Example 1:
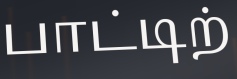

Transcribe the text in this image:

பாட்டிற்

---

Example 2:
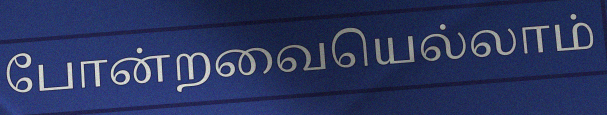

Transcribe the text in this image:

போன்றவையெல்லாம்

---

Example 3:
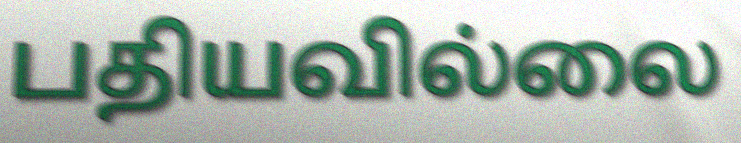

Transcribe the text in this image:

பதியவில்லை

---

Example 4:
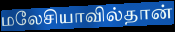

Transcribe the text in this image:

மலேசியாவில்தான்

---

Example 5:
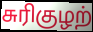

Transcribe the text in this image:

சுரிகுழற்